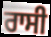
ਰਾਸੀ